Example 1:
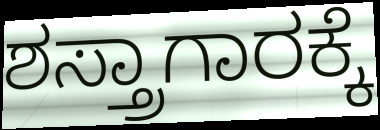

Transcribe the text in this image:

ಶಸ್ತ್ರಾಗಾರಕ್ಕೆ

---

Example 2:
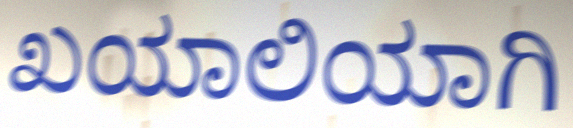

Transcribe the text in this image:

ಖಯಾಲಿಯಾಗಿ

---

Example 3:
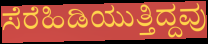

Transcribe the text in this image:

ಸೆರೆಹಿಡಿಯುತ್ತಿದ್ದವು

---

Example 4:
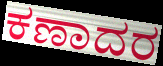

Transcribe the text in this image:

ಕಣಾದರ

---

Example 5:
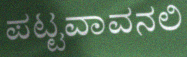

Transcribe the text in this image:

ಪಟ್ಟವಾವನಲಿ